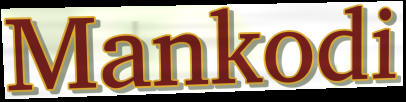
Mankodi